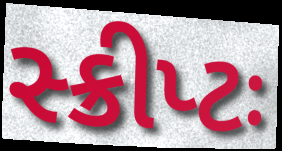
સ્ક્રીપ્ટઃ